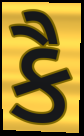
કૈ